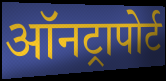
ऑनट्रापोर्ट